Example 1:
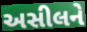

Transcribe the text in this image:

અસીલને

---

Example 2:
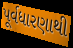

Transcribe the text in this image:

પૂર્વધારણાથી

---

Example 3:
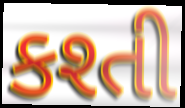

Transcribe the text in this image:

કશ્તી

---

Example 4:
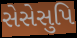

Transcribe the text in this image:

સેસેસુપિ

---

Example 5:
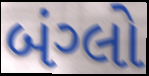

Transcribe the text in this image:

બંગ્લો